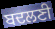
ਬਦਲਣੀ